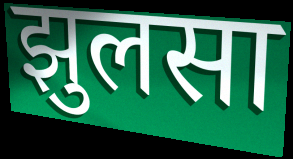
झुलसा